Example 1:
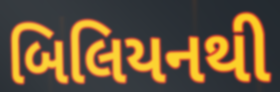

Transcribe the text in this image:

બિલિયનથી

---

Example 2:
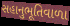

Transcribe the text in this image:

સહાનુભૂતિવાળા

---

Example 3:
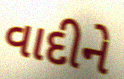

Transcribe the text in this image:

વાદીને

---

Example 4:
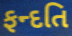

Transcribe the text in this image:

ફન્દતિ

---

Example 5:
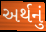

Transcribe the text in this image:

અર્થનું